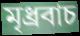
মৃধ্রবাচ